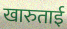
खारुताई